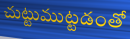
చుట్టుముట్టడంతో